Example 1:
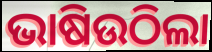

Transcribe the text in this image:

ଭାଷିଉଠିଲା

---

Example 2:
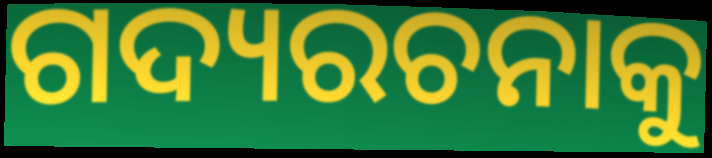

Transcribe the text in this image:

ଗଦ୍ୟରଚନାକୁ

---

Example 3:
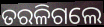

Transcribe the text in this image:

ତରଳିଗଲେ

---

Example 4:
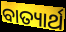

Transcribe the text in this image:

ବାତ୍ୟାର୍ଥ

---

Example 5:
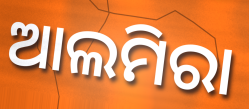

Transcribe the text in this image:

ଆଲମିରା